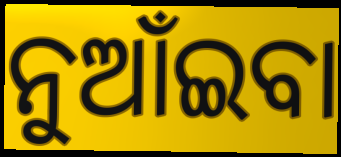
ନୁଆଁଇବା